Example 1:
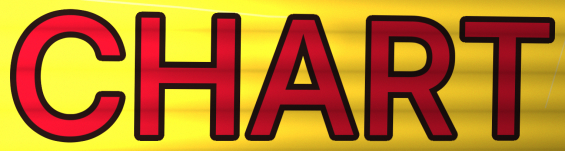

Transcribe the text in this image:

CHART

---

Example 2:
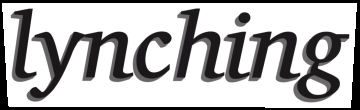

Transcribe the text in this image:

lynching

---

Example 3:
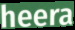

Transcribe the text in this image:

heera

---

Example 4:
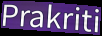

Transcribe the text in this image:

Prakriti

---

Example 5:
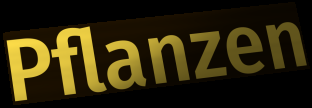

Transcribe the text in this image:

Pflanzen